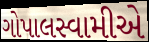
ગોપાલસ્વામીએ